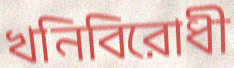
খনিবিরোধী